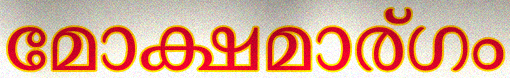
മോക്ഷമാര്ഗം